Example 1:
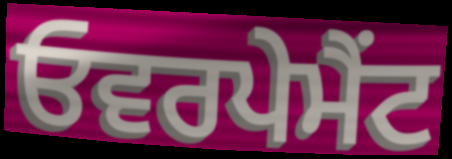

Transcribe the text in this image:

ਓਵਰਪੇਮੈਂਟ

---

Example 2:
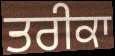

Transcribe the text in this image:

ਤਰੀਕਾ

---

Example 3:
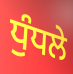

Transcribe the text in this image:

ਧੁੰਧਲੇ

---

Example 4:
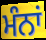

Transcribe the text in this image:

ਮੰਨਾਂ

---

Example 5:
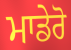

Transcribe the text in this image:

ਮਾਡੇਰੋ